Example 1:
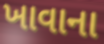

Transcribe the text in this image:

ખાવાના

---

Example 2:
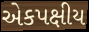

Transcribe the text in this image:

એકપક્ષીય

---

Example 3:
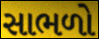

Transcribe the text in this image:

સાભળો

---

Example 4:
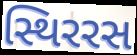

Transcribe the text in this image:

સ્થિરરસ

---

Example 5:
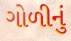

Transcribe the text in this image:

ગોળીનું